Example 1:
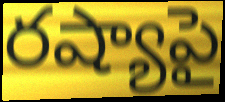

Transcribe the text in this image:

రష్యాపై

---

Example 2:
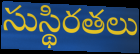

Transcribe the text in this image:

సుస్థిరతలు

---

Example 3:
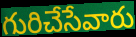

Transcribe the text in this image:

గురిచేసేవారు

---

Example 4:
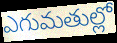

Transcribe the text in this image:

ఎగుమతుల్లో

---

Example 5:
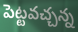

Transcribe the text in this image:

పెట్టవచ్చన్న